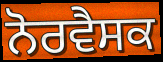
ਨੋਰਵੈਸਕ